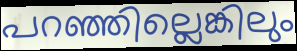
പറഞ്ഞില്ലെങ്കിലും